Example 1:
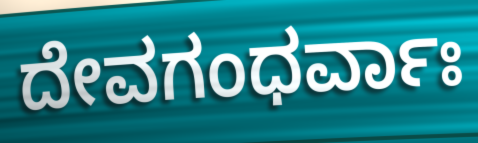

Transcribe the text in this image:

ದೇವಗಂಧರ್ವಾಃ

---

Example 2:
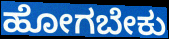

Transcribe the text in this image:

ಹೋಗಬೇಕು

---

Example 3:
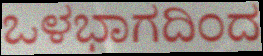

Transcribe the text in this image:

ಒಳಭಾಗದಿಂದ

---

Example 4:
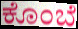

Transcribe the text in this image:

ಕೊಂಬೆ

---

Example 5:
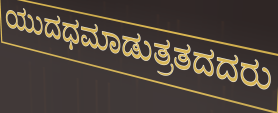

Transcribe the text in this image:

ಯುದಧಮಾಡುತ್ರತದದರು